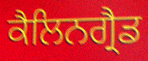
ਕੈਲਿਨਗ੍ਰੈਡ